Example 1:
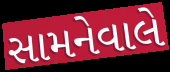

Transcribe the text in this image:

સામનેવાલે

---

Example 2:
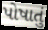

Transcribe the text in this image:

પોષાતું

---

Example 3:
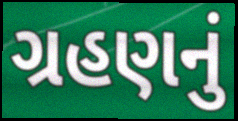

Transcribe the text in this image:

ગ્રહણનું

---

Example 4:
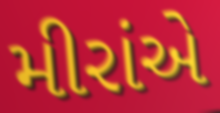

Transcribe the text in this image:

મીરાંએ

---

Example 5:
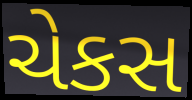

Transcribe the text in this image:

ચેકસ